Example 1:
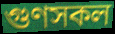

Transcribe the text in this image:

গুণসকল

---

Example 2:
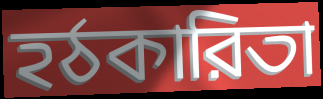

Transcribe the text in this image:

হঠকারিতা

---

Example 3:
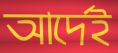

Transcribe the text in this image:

আর্দেই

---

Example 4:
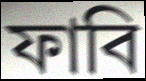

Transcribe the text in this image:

ফাবি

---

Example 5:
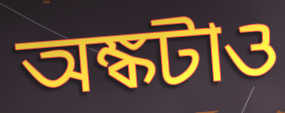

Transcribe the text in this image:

অঙ্কটাও